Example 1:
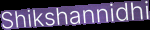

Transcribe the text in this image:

Shikshannidhi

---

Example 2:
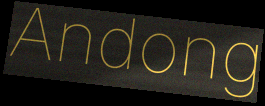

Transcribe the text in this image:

Andong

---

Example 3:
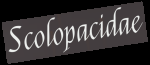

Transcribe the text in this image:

Scolopacidae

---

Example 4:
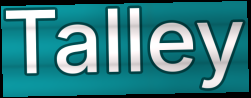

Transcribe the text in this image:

Talley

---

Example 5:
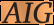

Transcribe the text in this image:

AIG